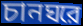
চানঘরে